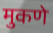
मुकणे